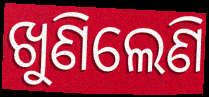
ଖୁଣିଲେଣି